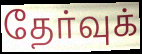
தேர்வுக்